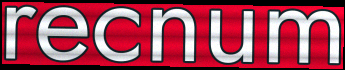
recnum